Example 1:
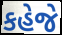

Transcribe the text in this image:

કહેજે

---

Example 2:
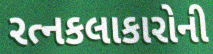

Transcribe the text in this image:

રત્નકલાકારોની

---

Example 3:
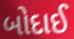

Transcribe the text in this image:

બોદાઈ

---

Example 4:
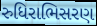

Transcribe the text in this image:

રુધિરાભિસરણ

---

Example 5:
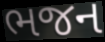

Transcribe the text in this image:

ભજન